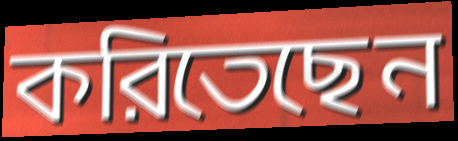
করিতেছেন